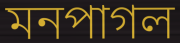
মনপাগল